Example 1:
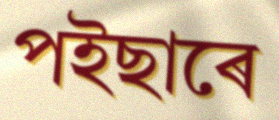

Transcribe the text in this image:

পইছাৰে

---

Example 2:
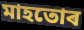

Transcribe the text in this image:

মাহতোৰ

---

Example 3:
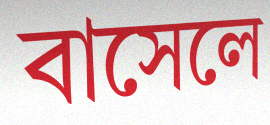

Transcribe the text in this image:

বাসেলে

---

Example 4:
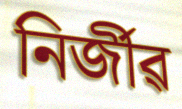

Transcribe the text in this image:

নিৰ্জীৱ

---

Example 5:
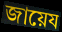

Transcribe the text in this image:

জায়েয